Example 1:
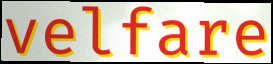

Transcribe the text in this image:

velfare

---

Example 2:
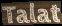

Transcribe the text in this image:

Talat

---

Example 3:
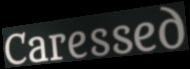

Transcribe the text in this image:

Caressed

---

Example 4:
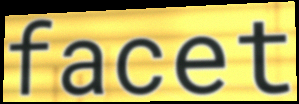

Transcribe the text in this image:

facet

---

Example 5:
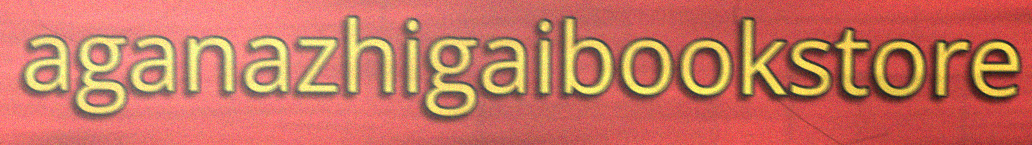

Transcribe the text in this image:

aganazhigaibookstore